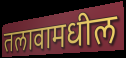
तलावामधील